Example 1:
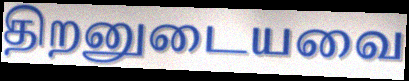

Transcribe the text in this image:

திறனுடையவை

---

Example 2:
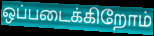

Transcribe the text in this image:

ஒப்படைக்கிறோம்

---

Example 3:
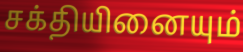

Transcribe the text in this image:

சக்தியினையும்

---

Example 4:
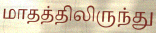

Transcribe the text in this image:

மாதத்திலிருந்து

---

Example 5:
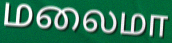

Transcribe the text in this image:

மலைமா